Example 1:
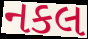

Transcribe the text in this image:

નકલ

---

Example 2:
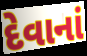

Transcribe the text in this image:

દેવાનાં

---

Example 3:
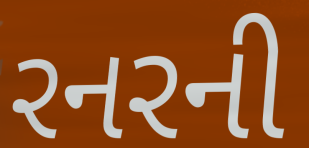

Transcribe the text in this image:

રનરની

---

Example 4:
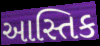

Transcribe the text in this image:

આસ્તિક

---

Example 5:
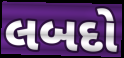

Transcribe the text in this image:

લબદો